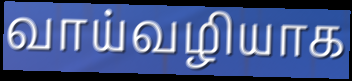
வாய்வழியாக